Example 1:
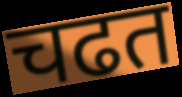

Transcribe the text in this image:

चढत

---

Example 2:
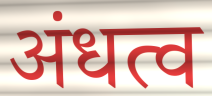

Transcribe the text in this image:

अंधत्व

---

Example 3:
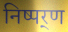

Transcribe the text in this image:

निष्पर्ण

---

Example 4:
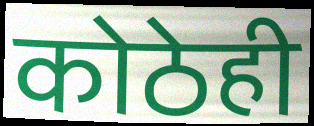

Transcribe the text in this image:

कोठेही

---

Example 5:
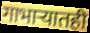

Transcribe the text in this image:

गाभाऱ्यातही